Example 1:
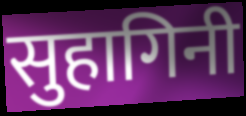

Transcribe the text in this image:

सुहागिनी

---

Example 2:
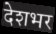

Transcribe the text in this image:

देशभर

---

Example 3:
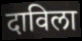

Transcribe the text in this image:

दाविला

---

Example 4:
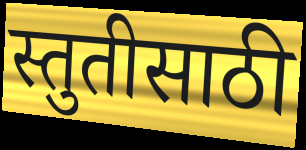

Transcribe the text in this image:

स्तुतीसाठी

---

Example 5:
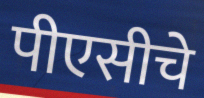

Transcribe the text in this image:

पीएसीचे